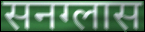
सनग्लास